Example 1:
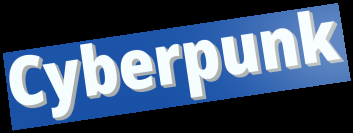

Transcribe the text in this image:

Cyberpunk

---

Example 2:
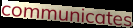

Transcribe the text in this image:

communicates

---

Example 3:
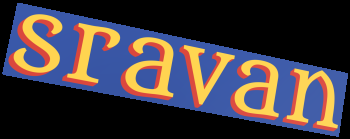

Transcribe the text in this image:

sravan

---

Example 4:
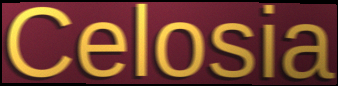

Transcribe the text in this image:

Celosia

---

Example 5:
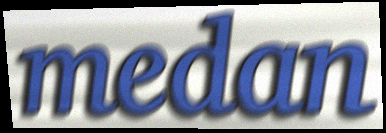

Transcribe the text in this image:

medan